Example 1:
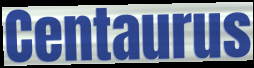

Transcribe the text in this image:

Centaurus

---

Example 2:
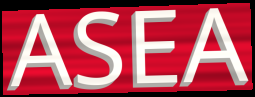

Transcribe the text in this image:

ASEA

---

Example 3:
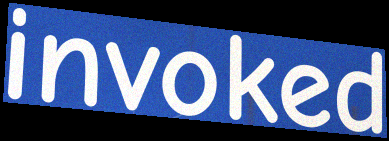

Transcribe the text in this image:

invoked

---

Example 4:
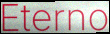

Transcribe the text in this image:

Eterno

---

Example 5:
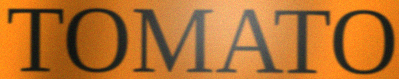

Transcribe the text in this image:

TOMATO